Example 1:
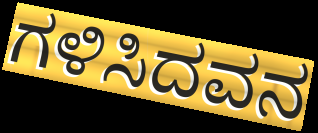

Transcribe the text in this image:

ಗಳಿಸಿದವನ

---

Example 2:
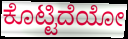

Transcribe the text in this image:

ಕೊಟ್ಟಿದೆಯೋ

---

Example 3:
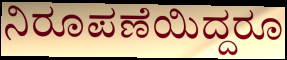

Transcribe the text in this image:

ನಿರೂಪಣೆಯಿದ್ದರೂ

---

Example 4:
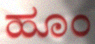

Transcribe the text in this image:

ಹೂಂ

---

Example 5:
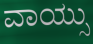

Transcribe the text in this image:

ವಾಯ್ಸು